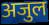
अजुल